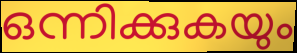
ഒന്നിക്കുകയും